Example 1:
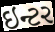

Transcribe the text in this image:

ઇન્ટર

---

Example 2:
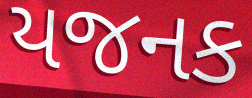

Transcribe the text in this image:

યજનક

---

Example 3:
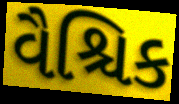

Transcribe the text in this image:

વૈશ્ચિક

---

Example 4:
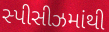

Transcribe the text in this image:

સ્પીસીઝમાંથી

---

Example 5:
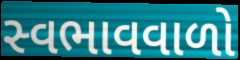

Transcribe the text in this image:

સ્વભાવવાળો